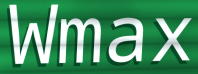
Wmax